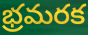
భ్రమరక